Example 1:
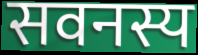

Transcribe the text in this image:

सवनस्य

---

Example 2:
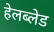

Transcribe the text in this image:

हेलब्लेड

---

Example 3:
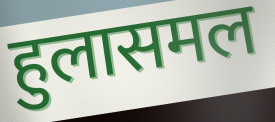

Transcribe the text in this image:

हुलासमल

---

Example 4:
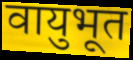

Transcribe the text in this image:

वायुभूत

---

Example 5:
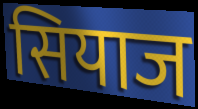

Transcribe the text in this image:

सियाज